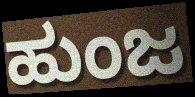
ಹುಂಜ